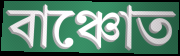
বাঞ্চোত